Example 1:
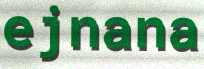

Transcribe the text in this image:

ejnana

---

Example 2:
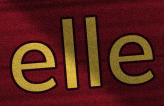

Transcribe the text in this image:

elle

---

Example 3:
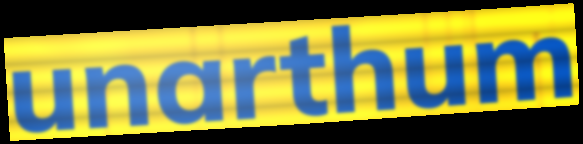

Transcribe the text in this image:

unarthum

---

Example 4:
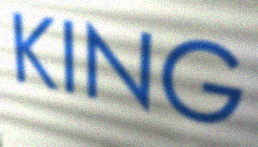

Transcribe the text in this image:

KING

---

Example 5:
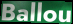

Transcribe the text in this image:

Ballou